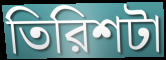
তিরিশটা